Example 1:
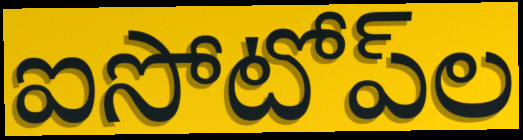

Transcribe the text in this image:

ఐసోటోప్‌ల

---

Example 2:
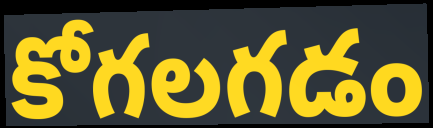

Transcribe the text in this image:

కోగలగడం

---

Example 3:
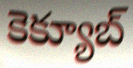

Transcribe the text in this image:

కెక్యూబ్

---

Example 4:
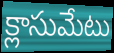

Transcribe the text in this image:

క్లాసుమేటు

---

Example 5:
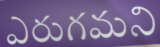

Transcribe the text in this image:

ఎరుగమని